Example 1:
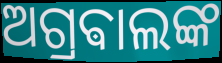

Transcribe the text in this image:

ଅଗ୍ରଵାଲଙ୍କ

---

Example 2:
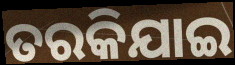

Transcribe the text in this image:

ତରକିଯାଇ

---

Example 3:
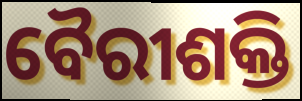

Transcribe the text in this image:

ବୈରୀଶକ୍ତି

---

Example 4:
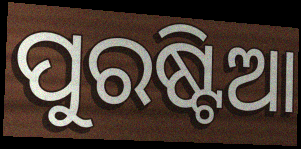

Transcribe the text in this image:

ପୁରଷ୍ଟିଆ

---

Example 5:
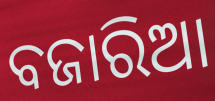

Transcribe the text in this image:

ବଜାରିଆ